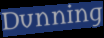
Dunning